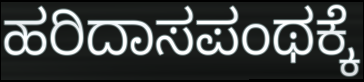
ಹರಿದಾಸಪಂಥಕ್ಕೆ